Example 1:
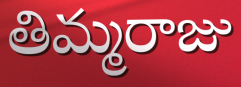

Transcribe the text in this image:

తిమ్మరాజు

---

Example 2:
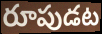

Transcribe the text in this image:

రూపుడట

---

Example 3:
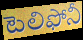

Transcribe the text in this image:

టెలిఫోనీ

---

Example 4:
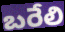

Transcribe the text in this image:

బరేలి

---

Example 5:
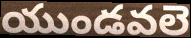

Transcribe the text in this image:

యుండవలె